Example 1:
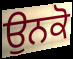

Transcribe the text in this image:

ਉਨਕੋ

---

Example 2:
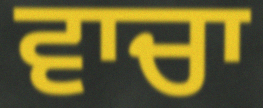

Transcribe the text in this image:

ਵਾਚਾ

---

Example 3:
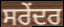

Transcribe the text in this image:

ਸਰੇਂਦਰ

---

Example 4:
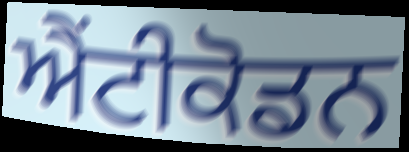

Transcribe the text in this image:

ਐਂਟੀਕੋਡਨ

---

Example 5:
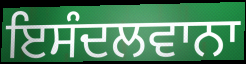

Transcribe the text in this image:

ਇਸੰਦਲਵਾਨਾ